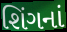
શિંગનાં